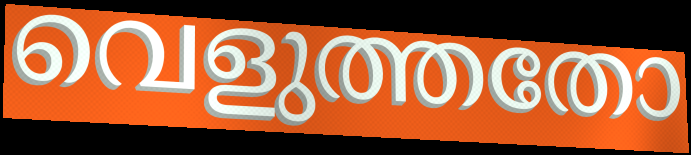
വെളുത്തതോ